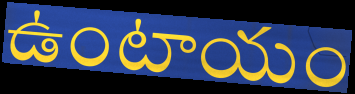
ఉంటాయం